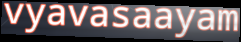
vyavasaayam